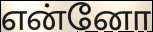
என்னோ